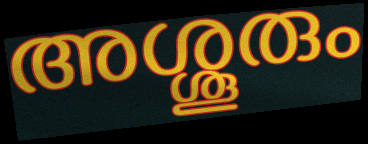
അശ്ശൂരും